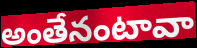
అంతేనంటావా